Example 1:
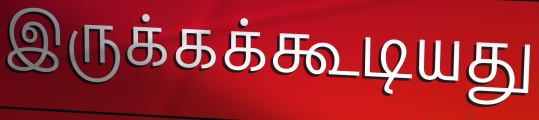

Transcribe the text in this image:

இருக்கக்கூடியது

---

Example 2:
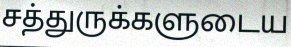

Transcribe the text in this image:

சத்துருக்களுடைய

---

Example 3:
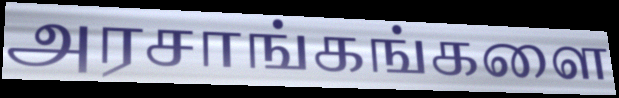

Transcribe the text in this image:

அரசாங்கங்களை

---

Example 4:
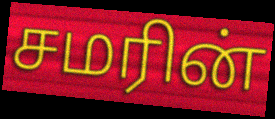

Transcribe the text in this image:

சமரின்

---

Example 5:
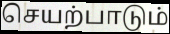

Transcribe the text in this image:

செயற்பாடும்